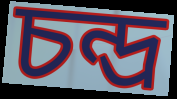
চন্দ্র